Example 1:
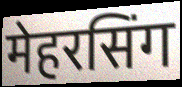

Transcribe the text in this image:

मेहरसिंग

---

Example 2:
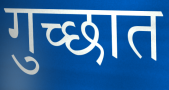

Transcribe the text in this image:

गुच्छात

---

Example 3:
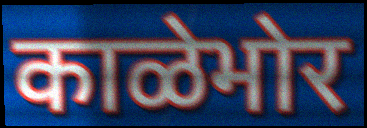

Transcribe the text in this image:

काळेभोर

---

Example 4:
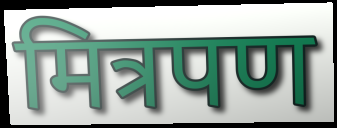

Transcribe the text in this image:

मित्रपण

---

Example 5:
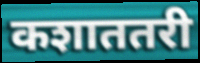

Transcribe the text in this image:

कशाततरी